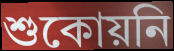
শুকোয়নি